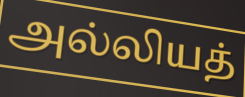
அல்லியத்